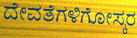
ದೇವತೆಗಳಿಗೋಸ್ಕರ